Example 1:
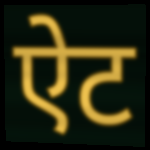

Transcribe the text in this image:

ऐट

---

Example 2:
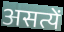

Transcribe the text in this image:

असत्यें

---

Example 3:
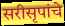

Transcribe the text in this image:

सरीसृपांचे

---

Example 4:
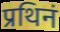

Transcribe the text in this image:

प्रथिनं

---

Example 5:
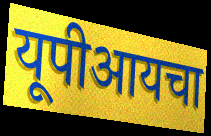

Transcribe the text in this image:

यूपीआयचा